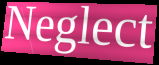
Neglect